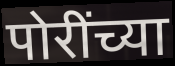
पोरींच्या